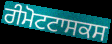
ਰੀਮੋਟਟਾਸਕਸ